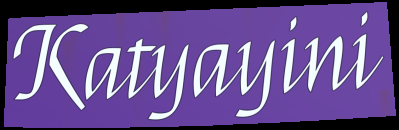
Katyayini